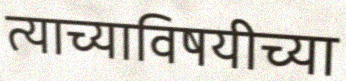
त्याच्याविषयीच्या